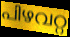
പിഴവറ്റ